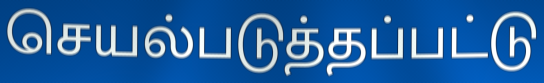
செயல்படுத்தப்பட்டு